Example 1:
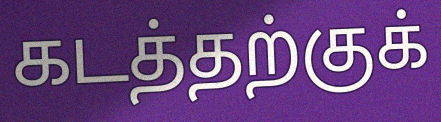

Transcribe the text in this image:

கடத்தற்குக்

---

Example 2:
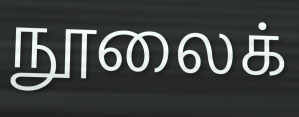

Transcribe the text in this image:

நூலைக்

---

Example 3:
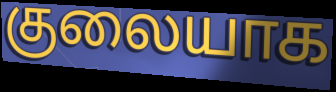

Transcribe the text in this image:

குலையாக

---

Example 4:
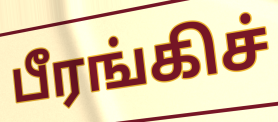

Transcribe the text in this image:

பீரங்கிச்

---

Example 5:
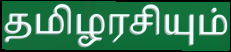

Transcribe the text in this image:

தமிழரசியும்